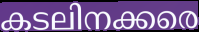
കടലിനക്കരെ